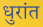
धुरांत